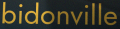
bidonville